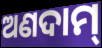
ଅଣଦାମ୍